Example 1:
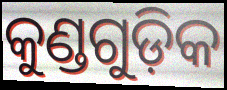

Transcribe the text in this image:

କୁଣ୍ଡଗୁଡ଼ିକ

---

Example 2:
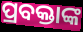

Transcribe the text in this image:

ପ୍ରବକ୍ତାଙ୍କ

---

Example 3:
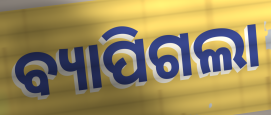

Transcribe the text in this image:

ବ୍ୟାପିଗଲା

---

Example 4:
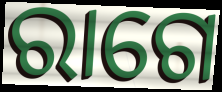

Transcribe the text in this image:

ରାଗେ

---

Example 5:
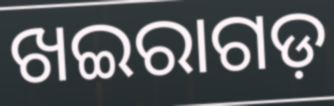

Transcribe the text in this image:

ଖଇରାଗଡ଼